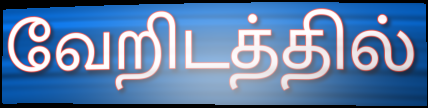
வேறிடத்தில்